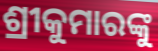
ଶ୍ରୀକୁମାରଙ୍କୁ